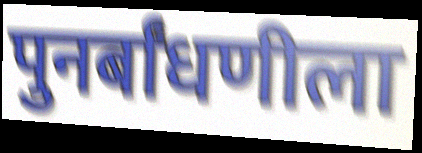
पुनर्बांधणीला